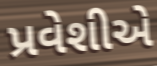
પ્રવેશીએ